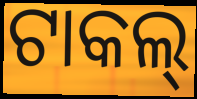
ଟାକଲ୍